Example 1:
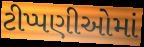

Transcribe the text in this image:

ટીપ્પણીઓમાં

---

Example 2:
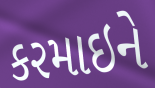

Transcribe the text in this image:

કરમાઇને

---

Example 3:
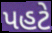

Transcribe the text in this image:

પહટે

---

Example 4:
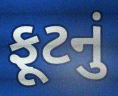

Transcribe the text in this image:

ફૂટનું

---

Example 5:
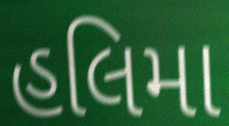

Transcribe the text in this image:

હલિમા